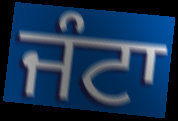
ਜੰਟਾ